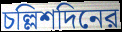
চল্লিশদিনের